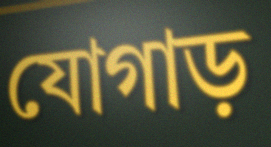
যোগাড়